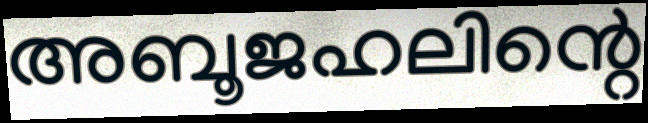
അബൂജഹലിന്റെ